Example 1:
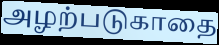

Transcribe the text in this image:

அழற்படுகாதை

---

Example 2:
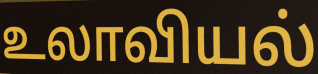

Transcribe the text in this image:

உலாவியல்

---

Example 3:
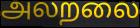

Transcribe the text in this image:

அலறலை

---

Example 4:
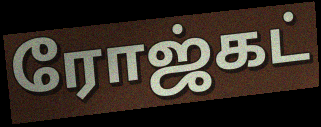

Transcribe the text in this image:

ரோஜ்கட்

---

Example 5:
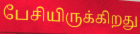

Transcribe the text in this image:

பேசியிருக்கிறது